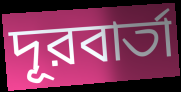
দূরবার্তা